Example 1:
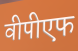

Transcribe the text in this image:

वीपीएफ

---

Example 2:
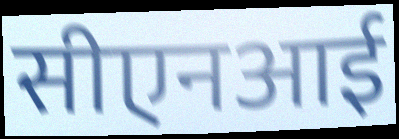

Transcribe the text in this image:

सीएनआई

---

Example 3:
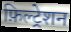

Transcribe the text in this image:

फ़िल्ट्रेशन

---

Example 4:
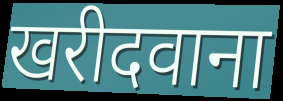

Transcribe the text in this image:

खरीदवाना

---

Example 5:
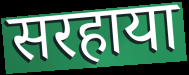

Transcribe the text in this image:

सरहाया